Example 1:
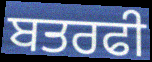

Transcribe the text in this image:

ਬਤਰਫੀ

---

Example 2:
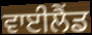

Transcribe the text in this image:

ਵਾਈਲੈਂਡ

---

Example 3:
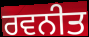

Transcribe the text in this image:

ਰਵਨੀਤ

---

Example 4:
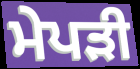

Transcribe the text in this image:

ਮੇਪੜੀ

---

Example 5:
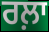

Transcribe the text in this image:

ਰਲ਼ਾ